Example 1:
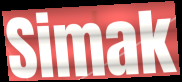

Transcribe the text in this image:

Simak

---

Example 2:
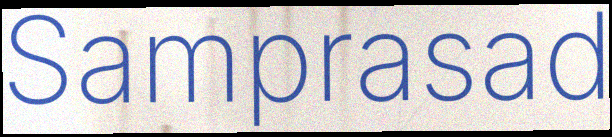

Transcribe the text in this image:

Samprasad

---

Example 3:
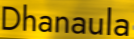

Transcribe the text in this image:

Dhanaula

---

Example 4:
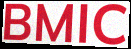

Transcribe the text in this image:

BMIC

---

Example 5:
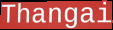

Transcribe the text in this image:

Thangai